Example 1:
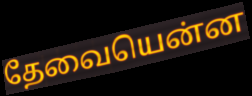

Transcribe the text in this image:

தேவையென்ன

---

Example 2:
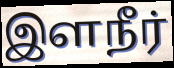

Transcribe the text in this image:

இளநீர்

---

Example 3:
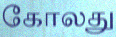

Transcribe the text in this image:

கோலது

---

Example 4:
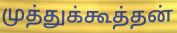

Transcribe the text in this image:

முத்துக்கூத்தன்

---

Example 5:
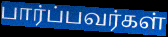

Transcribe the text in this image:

பார்ப்பவர்கள்